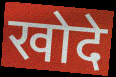
खोदे